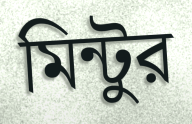
মিন্টুর